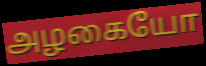
அழகையோ